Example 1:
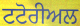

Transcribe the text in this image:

ਟਟੋਰੀਅਲ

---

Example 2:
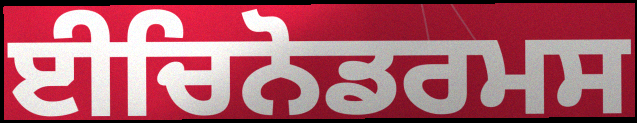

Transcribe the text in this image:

ਈਚਿਨੋਡਰਮਸ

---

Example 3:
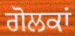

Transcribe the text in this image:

ਗੋਲਕਾਂ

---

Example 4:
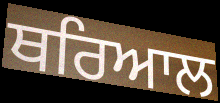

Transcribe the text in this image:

ਥਰਿਆਲ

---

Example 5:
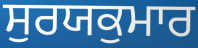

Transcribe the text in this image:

ਸੁਰਯਕੁਮਾਰ